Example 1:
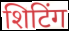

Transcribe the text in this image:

शिटिंग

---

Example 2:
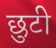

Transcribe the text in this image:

छुटी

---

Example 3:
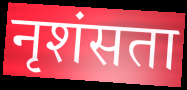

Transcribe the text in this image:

नृशंसता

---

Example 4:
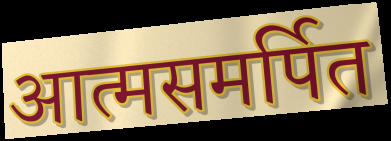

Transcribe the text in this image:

आत्मसमर्पित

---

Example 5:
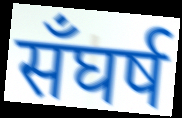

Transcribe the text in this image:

सँघर्ष